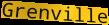
Grenville